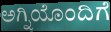
ಅಗ್ನಿಯೊಂದಿಗೆ